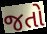
જતો